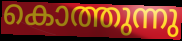
കൊത്തുന്നു